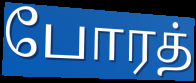
போரத்